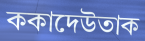
ককাদেউতাক